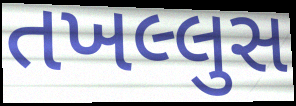
તખલ્લુસ